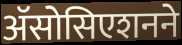
ॲसोसिएशनने